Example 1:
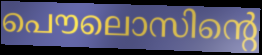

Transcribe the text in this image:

പൌലൊസിന്റെ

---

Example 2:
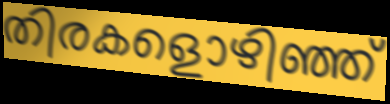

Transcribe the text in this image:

തിരകളൊഴിഞ്ഞ്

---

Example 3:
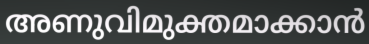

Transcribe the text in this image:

അണുവിമുക്തമാക്കാൻ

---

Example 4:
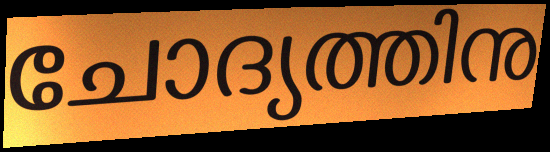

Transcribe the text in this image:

ചോദ്യത്തിനു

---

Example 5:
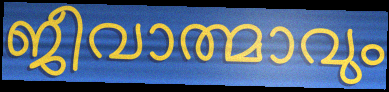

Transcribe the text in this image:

ജീവാത്മാവും